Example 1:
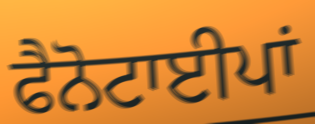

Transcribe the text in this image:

ਫੈਨੋਟਾਈਪਾਂ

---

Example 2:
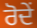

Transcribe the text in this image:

ਰੋਦੇਂ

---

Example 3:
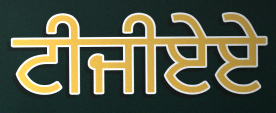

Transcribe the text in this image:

ਟੀਜੀਏਏ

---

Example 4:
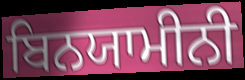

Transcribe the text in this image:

ਬਿਨਯਾਮੀਨੀ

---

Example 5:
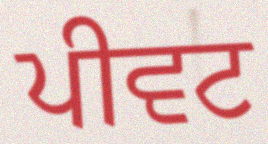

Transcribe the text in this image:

ਪੀਵਟ